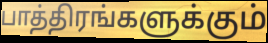
பாத்திரங்களுக்கும்